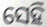
ସେହି